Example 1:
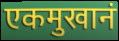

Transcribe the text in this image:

एकमुखानं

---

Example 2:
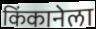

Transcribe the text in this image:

किंकानेला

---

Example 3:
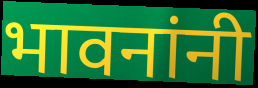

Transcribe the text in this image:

भावनांनी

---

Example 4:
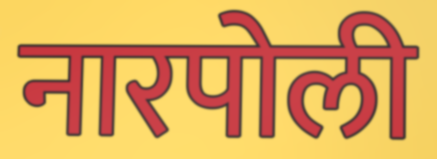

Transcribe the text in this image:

नारपोली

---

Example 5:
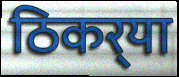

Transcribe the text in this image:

ठिकर्‍या